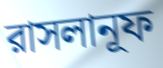
রাসলানূফ